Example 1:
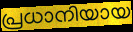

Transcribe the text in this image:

പ്രധാനിയായ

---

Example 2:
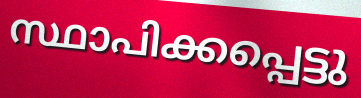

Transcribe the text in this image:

സ്ഥാപിക്കപ്പെട്ടു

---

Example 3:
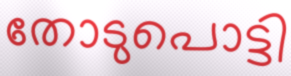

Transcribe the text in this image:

തോടുപൊട്ടി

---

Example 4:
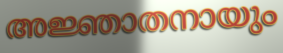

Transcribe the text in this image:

അജ്ഞാതനായും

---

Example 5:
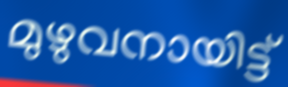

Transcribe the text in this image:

മുഴുവനായിട്ട്